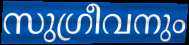
സുഗ്രീവനും